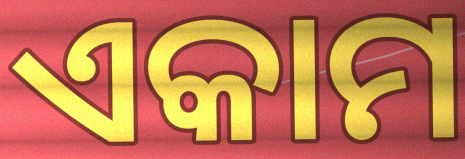
ଏକାମ